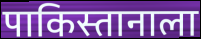
पाकिस्तानाला